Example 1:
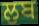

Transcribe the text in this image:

ਲੁਬ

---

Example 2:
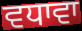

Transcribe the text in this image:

ਵਧਾਵਾ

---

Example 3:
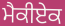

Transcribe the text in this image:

ਮੈਕੀਏਕ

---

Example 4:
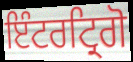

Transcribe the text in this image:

ਇੰਟਰਟ੍ਰਿਗੋ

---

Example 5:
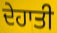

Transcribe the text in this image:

ਦੇਹਾਤੀ